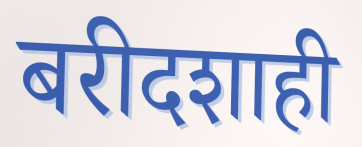
बरीदशाही